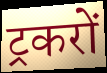
ट्रकरों